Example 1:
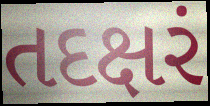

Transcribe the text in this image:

તદક્ષરં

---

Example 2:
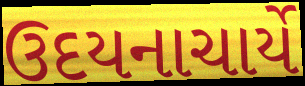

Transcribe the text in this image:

ઉદયનાચાર્યે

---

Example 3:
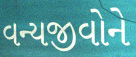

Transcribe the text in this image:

વન્યજીવોને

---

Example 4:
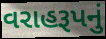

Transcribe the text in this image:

વરાહરૂપનું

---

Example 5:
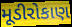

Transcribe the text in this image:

મૂડીરોકાણ